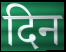
दिन